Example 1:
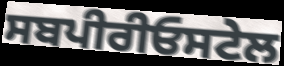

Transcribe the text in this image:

ਸਬਪੀਰੀਓਸਟੇਲ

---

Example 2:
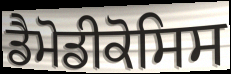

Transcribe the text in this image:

ਡੈਮੋਡੀਕੋਸਿਸ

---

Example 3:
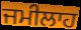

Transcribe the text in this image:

ਜਮੀਲਾਹ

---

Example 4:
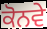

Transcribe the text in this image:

ਕੋਨਵੇ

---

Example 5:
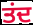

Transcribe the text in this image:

ਤਂਦ